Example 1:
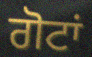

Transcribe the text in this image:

ਗੋਟਾਂ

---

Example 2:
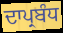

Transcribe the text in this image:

ਦਾਪ੍ਰਬੰਧ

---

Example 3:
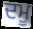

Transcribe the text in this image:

ਦਮੂ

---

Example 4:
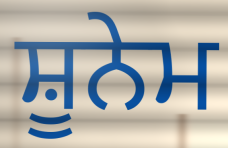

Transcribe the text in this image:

ਸ਼ੂਨੇਮ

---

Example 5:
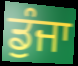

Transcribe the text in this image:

ਡੁੰਜਾ